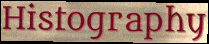
Histography